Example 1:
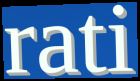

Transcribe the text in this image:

rati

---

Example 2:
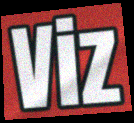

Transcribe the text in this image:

Viz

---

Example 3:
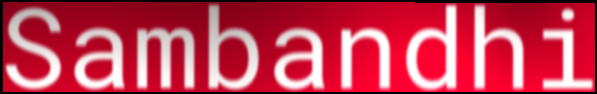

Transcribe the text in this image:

Sambandhi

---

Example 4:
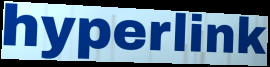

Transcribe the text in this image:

hyperlink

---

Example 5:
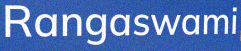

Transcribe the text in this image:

Rangaswami